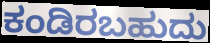
ಕಂಡಿರಬಹುದು